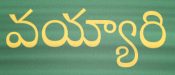
వయ్యారి